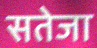
सतेजा